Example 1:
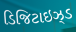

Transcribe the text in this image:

ડિજિટાઇઝ્ડ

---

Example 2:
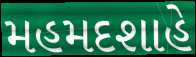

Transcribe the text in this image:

મહમદશાહે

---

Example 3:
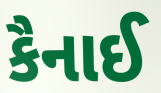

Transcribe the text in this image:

કૈનાઈ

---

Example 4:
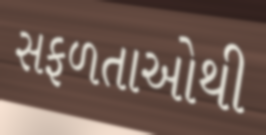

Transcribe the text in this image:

સફળતાઓથી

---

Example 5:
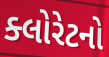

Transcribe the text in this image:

ક્લોરેટનો